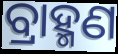
ବ୍ରାହ୍ମଣ